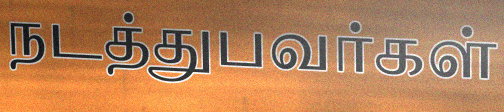
நடத்துபவர்கள்